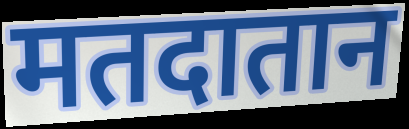
मतदातान